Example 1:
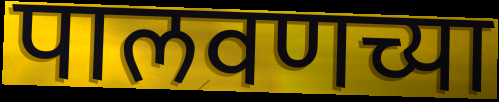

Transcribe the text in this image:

पालवणच्या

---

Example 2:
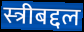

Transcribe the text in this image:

स्त्रीबद्दल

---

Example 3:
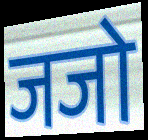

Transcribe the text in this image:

जजो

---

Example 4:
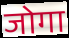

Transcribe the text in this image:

जोगा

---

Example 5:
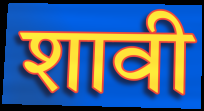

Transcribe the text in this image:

शावी